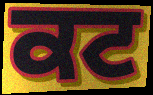
ਕਟ